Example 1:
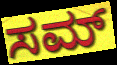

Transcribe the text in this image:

ಸಮ್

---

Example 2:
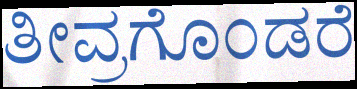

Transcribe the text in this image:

ತೀವ್ರಗೊಂಡರೆ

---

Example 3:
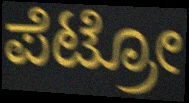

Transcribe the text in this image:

ಪೆಟ್ರೋ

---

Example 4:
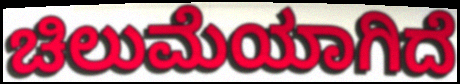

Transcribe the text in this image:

ಚಿಲುಮೆಯಾಗಿದೆ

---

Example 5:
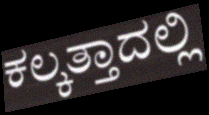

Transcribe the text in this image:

ಕಲ್ಕತ್ತಾದಲ್ಲಿ